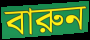
বারুন